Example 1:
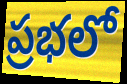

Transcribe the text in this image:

ప్రభలో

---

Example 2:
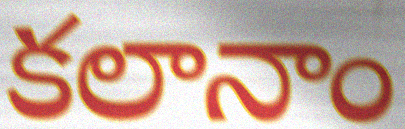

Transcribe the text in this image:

కలానాం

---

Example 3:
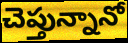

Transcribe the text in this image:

చెప్తున్నానో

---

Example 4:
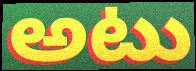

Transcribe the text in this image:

అటు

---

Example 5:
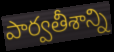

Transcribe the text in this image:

పార్వతీశాన్ని